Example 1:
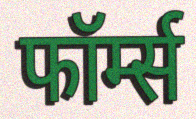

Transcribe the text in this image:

फॉर्म्स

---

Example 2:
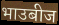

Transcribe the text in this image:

भाउबीज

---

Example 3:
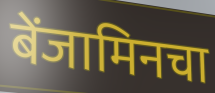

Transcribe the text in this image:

बेंजामिनचा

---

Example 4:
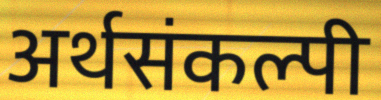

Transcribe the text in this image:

अर्थसंकल्पी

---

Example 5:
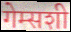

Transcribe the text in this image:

गेम्सशी